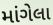
માંગેલા